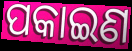
ପକାଇଣ